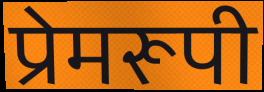
प्रेमरूपी